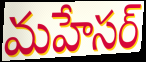
మహేసర్